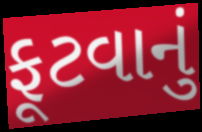
ફૂટવાનું